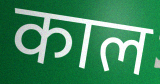
काल